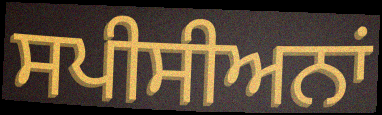
ਸਪੀਸੀਅਨਾਂ